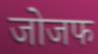
जोजफ